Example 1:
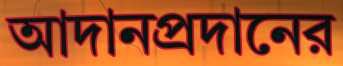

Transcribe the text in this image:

আদানপ্রদানের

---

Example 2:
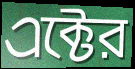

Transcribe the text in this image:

এক্টের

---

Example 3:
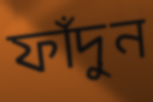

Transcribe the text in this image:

ফাঁদুন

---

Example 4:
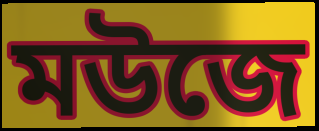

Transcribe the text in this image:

মউজে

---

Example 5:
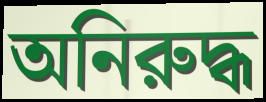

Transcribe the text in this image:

অনিরুদ্ধ